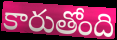
కారుతోంది